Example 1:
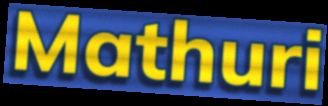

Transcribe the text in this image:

Mathuri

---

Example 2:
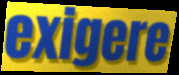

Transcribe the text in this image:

exigere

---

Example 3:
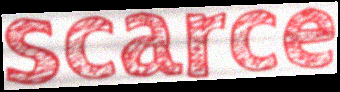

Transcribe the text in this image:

scarce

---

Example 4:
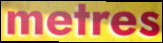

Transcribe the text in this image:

metres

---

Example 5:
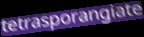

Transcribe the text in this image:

tetrasporangiate